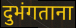
दुभंगताना